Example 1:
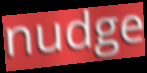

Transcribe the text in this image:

nudge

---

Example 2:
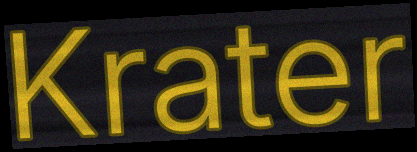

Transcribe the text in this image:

Krater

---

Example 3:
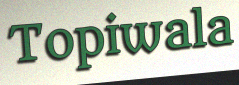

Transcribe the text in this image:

Topiwala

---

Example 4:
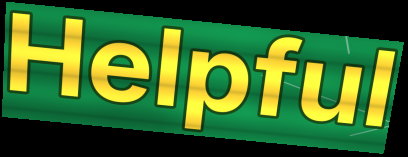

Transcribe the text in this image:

Helpful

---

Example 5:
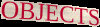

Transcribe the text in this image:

OBJECTS